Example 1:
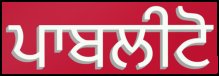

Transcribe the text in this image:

ਪਾਬਲੀਟੋ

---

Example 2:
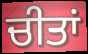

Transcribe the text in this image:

ਚੀਤਾਂ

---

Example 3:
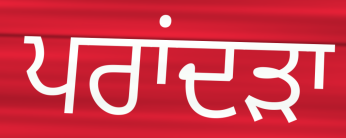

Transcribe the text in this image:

ਪਰਾਂਦੜਾ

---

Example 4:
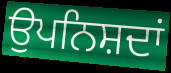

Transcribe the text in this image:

ਉਪਨਿਸ਼ਦਾਂ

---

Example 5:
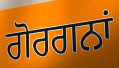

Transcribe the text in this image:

ਗੋਰਗਨਾਂ